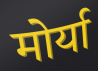
मोर्या